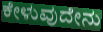
ಕೇಳುವುದೇನು